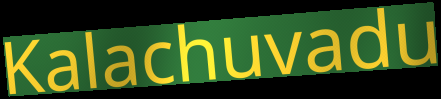
Kalachuvadu